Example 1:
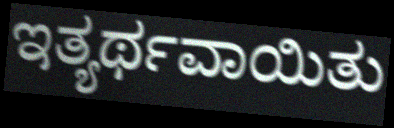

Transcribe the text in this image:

ಇತ್ಯರ್ಥವಾಯಿತು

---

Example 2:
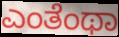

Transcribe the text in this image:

ಎಂತೆಂಥಾ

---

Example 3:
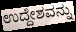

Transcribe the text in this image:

ಉದ್ದೇಶವನ್ನು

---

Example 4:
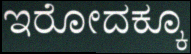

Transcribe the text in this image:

ಇರೋದಕ್ಕೂ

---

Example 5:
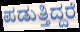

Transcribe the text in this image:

ಪಡುತ್ತಿದ್ದರೆ